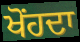
ਖੋਂਹਦਾ